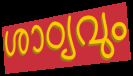
ശാഠ്യവും